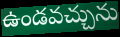
ఉండవచ్చును